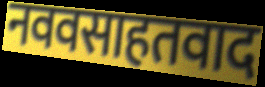
नववसाहतवाद